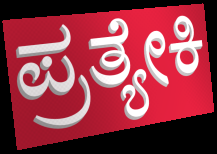
ಪ್ರತ್ಯೇಕಿ